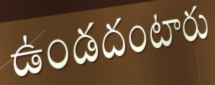
ఉండదంటారు